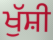
ਖੁੱਸ਼ੀ